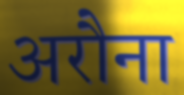
अरौना